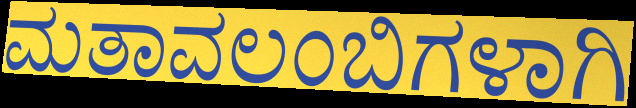
ಮತಾವಲಂಬಿಗಳಾಗಿ